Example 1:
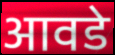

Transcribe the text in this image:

आवडे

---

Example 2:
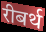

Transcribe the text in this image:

रीबर्थ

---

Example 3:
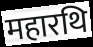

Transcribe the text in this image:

महारथि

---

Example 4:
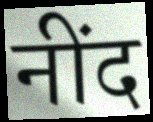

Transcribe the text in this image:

नींद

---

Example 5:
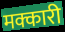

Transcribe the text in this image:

मक्कारी